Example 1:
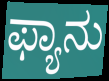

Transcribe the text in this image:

ಫ್ಯಾನು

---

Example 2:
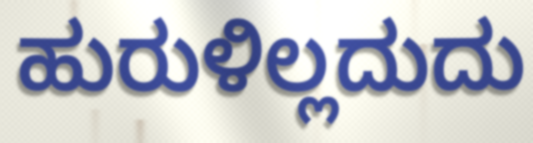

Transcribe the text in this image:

ಹುರುಳಿಲ್ಲದುದು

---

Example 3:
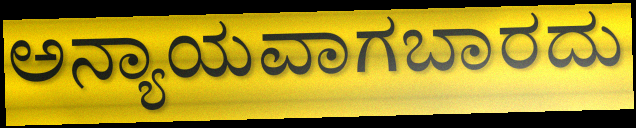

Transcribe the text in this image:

ಅನ್ಯಾಯವಾಗಬಾರದು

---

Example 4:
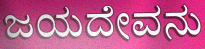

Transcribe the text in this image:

ಜಯದೇವನು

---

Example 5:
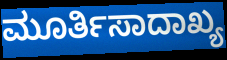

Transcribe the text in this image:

ಮೂರ್ತಿಸಾದಾಖ್ಯ